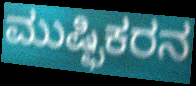
ಮುಷ್ಫಿಕರನ